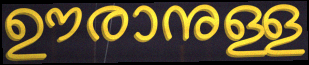
ഊരാനുള്ള